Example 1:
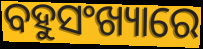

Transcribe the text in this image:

ବହୁସଂଖ୍ୟାରେ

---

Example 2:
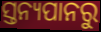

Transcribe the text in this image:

ସ୍ତନ୍ୟପାନରୁ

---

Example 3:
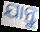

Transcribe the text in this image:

ଯାନ୍ତୁ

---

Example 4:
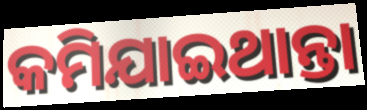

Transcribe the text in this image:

କମିଯାଇଥାନ୍ତା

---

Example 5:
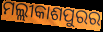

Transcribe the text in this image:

ମଲ୍ଲୀକାଶପୁରର